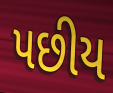
પછીય